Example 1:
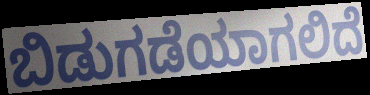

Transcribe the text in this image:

ಬಿಡುಗಡೆಯಾಗಲಿದೆ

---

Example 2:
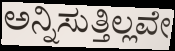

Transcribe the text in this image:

ಅನ್ನಿಸುತ್ತಿಲ್ಲವೇ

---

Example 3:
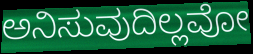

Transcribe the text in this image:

ಅನಿಸುವುದಿಲ್ಲವೋ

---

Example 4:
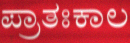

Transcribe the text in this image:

ಪ್ರಾತಃಕಾಲ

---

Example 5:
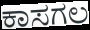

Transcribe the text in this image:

ಕಾಸಗಲ